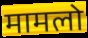
मामलो